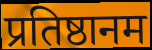
प्रतिष्ठानम